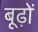
बूढ़ों